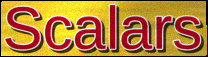
Scalars